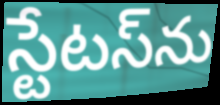
స్టేటస్‌ను